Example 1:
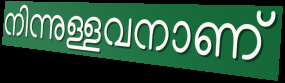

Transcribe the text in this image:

നിന്നുള്ളവനാണ്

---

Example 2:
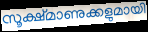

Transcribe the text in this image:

സൂക്ഷ്മാണുക്കളുമായി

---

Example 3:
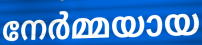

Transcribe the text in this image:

നേർമ്മയായ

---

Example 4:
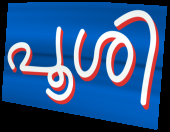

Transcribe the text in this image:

പൂശി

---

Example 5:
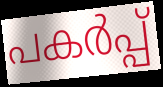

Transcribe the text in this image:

പകർപ്പ്